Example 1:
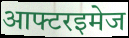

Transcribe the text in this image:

आफ्टरइमेज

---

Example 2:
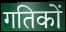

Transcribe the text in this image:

गतिकों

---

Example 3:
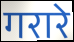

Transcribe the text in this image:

गरारे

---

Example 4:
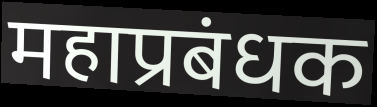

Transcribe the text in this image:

महाप्रबंधक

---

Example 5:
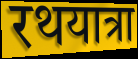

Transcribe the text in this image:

रथयात्रा